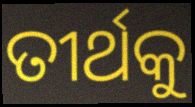
ତୀର୍ଥକୁ